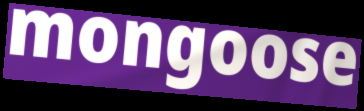
mongoose